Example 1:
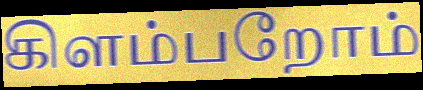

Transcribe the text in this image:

கிளம்பறோம்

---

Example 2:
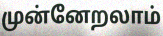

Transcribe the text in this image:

முன்னேறலாம்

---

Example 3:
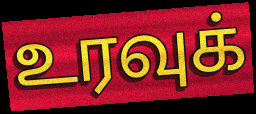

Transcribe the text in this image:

உரவுக்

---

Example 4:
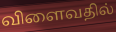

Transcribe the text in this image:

விளைவதில்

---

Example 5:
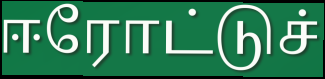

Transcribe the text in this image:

ஈரோட்டுச்